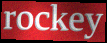
rockey